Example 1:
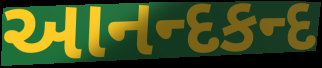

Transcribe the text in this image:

આનન્દકન્દ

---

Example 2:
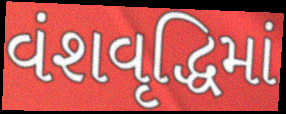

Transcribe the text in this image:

વંશવૃદ્ધિમાં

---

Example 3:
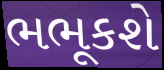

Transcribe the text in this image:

ભભૂકશે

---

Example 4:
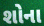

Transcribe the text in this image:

શોના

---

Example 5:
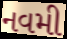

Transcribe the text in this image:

નવમી